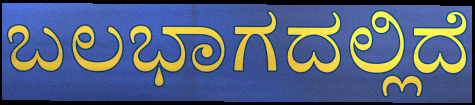
ಬಲಭಾಗದಲ್ಲಿದೆ